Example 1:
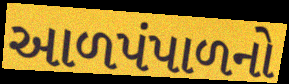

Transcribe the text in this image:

આળપંપાળનો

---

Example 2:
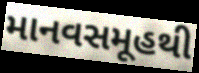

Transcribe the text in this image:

માનવસમૂહથી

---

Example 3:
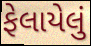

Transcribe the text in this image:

ફેલાયેલું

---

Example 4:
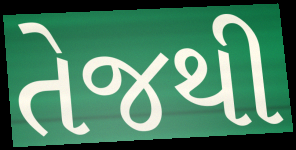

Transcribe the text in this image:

તેજથી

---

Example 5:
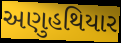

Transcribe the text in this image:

અણુહથિયાર